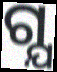
ଗ୍ଯ